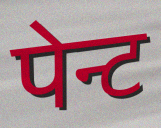
पेन्ट